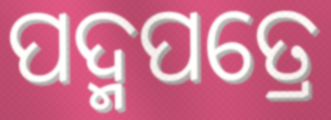
ପଦ୍ମପତ୍ରେ